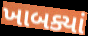
ખાબક્યાં